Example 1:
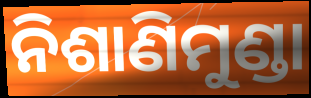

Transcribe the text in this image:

ନିଶାଣିମୁଣ୍ଡା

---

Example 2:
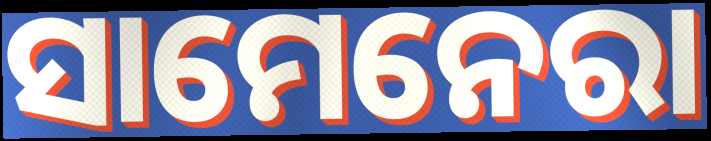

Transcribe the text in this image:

ସାମେନେରା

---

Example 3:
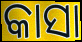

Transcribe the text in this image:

କାସା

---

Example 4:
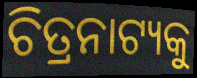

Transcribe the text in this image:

ଚିତ୍ରନାଟ୍ୟକୁ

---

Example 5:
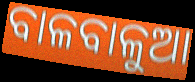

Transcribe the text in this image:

ବାଳବାଳୁଆ